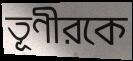
তূণীরকে